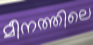
മീനത്തിലെ